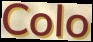
Colo